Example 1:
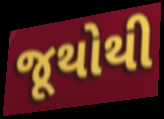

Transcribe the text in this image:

જૂથોથી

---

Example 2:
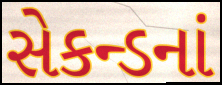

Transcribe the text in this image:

સેકન્ડનાં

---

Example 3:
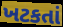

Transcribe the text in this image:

ખટકતાં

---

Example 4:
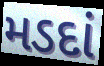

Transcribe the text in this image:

મડદાં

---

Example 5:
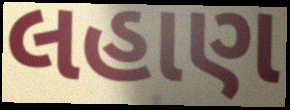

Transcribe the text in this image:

લહાણ